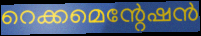
റെക്കമെന്റേഷൻ